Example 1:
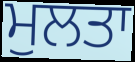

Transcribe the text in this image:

ਮੁਲਤਾ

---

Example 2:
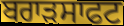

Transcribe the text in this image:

ਬਰਾੜਸਾਫਟ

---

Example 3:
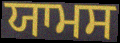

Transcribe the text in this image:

ਯਾਮਸ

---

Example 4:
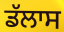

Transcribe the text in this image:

ਡੱਲਾਸ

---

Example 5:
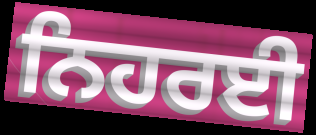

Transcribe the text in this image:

ਨਿਹਰਈ